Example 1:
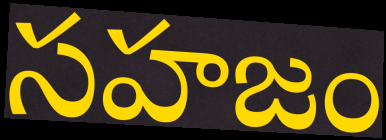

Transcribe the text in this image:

సహజం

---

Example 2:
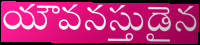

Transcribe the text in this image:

యౌవనస్తుడైన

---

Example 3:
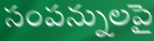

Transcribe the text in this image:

సంపన్నులపై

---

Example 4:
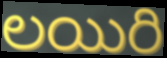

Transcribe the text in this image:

లయిరి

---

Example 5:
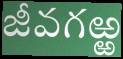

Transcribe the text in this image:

జీవగఱ్ఱ